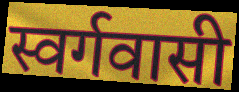
स्वर्गवासी